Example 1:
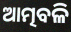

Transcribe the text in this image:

ଆତ୍ମବଳି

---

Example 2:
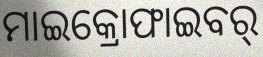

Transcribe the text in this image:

ମାଇକ୍ରୋଫାଇବର୍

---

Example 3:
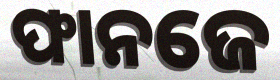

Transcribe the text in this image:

ଫାନଜେ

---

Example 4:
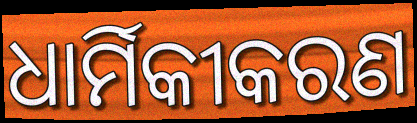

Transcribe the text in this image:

ଧାର୍ମିକୀକରଣ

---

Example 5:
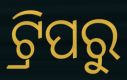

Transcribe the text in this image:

ଟ୍ରିପରୁ